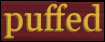
puffed